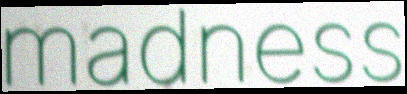
madness